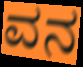
ವನ